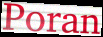
Poran